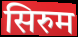
सिरुम